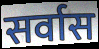
सर्वास